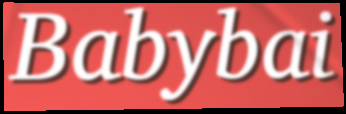
Babybai